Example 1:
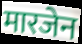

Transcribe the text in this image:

मारजेन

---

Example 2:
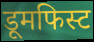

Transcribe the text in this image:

डूमफिस्ट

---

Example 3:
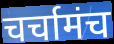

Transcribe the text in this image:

चर्चामंच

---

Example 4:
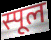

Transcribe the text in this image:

स्पूल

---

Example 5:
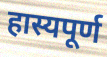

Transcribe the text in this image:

हास्यपूर्ण